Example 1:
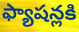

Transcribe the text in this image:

ఫ్యాషన్లకి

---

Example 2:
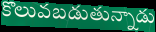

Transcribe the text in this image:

కొలువబడుతున్నాడు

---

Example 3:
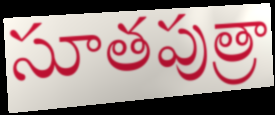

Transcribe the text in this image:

సూతపుత్రా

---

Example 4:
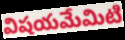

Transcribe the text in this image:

విషయమేమిటి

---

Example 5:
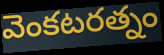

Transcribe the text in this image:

వెంకటరత్నం